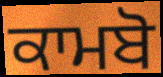
ਕਾਮਬੋ